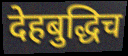
देहबुद्धिच